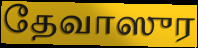
தேவாஸுர